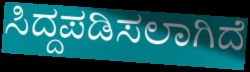
ಸಿದ್ದಪಡಿಸಲಾಗಿದೆ